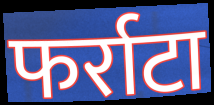
फर्राटा